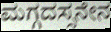
ಮಗ್ಗದಸ್ಸನೇನ